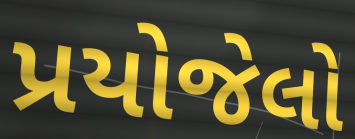
પ્રયોજેલો